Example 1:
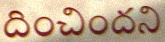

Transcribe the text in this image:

దించిందని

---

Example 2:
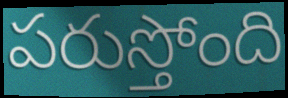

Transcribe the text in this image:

పరుస్తోంది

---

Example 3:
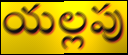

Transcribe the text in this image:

యల్లపు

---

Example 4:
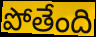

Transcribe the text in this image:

పోతేంది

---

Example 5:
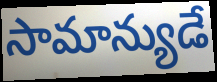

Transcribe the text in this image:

సామాన్యుడే